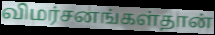
விமர்சனங்கள்தான்